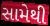
સામેથી